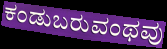
ಕಂಡುಬರುವಂಥವು